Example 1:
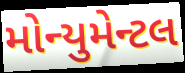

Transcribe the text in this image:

મોન્યુમેન્ટલ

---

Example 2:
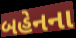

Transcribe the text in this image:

બહેનના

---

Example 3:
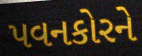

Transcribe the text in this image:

પવનકોરને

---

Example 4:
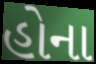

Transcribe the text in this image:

હોના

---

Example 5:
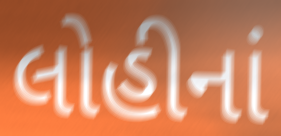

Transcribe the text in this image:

લોહીનાં